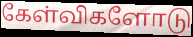
கேள்விகளோடு